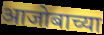
आजोबाच्या